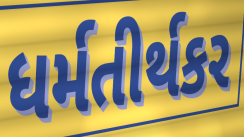
ધર્મતીર્થકર